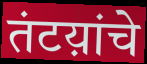
तंटय़ांचे